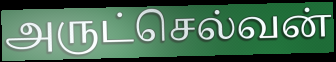
அருட்செல்வன்